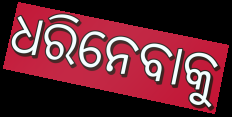
ଧରିନେବାକୁ